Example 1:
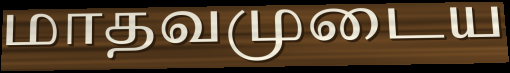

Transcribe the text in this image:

மாதவமுடைய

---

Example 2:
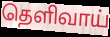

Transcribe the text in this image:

தெளிவாய்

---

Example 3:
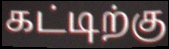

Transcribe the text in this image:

கட்டிற்கு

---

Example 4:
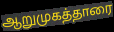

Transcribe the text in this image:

ஆறுமுகத்தாரை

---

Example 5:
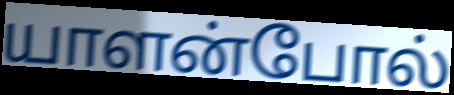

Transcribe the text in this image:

யாளன்போல்